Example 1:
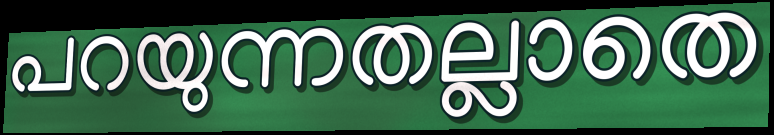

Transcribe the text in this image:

പറയുന്നതല്ലാതെ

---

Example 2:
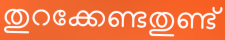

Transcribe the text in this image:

തുറക്കേണ്ടതുണ്ട്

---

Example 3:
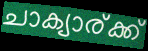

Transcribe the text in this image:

ചാക്യാര്ക്ക്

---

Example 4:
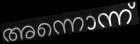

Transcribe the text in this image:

അന്നൊന്ന്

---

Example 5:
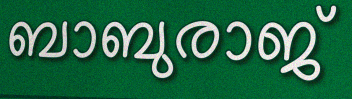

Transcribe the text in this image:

ബാബുരാജ്